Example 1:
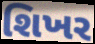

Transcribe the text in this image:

શિખર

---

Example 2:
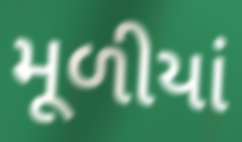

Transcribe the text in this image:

મૂળીયાં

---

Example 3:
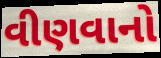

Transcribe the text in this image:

વીણવાનો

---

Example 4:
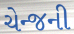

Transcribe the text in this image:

ચેન્જની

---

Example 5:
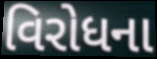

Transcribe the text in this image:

વિરોધના